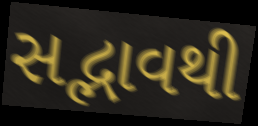
સદ્ભાવથી